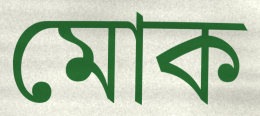
মোক